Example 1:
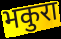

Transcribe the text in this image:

भकुरा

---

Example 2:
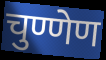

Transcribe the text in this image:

चुण्णेण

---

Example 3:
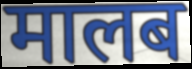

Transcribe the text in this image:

मालब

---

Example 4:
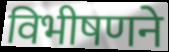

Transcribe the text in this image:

विभीषणने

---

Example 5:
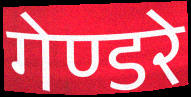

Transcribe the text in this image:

गेण्डरे